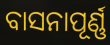
ବାସନାପୂର୍ଣ୍ଣ